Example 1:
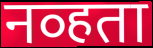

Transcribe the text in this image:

नव्हता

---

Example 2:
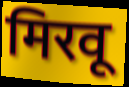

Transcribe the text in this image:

मिरवू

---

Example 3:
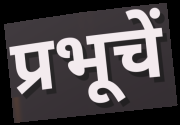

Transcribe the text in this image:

प्रभूचें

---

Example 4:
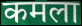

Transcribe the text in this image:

कमला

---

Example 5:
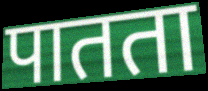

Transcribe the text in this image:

पातता